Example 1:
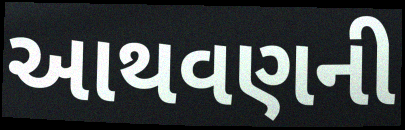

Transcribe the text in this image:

આથવણની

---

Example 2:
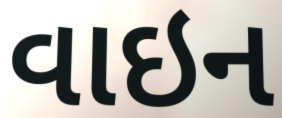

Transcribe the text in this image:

વાઇન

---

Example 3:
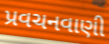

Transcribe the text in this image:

પ્રવચનવાણી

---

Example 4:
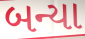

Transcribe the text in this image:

બન્યા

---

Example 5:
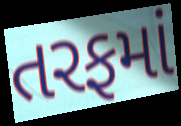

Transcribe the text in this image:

તરફમાં